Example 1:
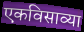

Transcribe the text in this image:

एकविसाव्या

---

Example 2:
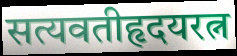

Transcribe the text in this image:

सत्यवतीहृदयरत्न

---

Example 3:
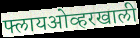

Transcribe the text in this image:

फ्लायओव्हरखाली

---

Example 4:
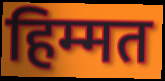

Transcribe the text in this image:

हिम्मत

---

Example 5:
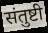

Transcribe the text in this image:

संतुष्टी